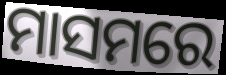
ମାସମରେ